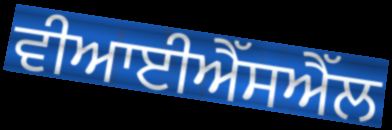
ਵੀਆਈਐੱਸਐੱਲ